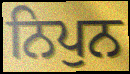
ਨਿਪੁਨ